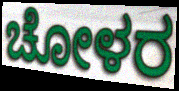
ಚೋಳರ